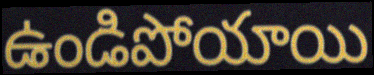
ఉండిపోయాయి